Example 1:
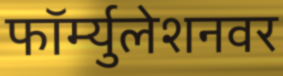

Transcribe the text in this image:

फॉर्म्युलेशनवर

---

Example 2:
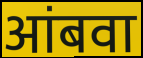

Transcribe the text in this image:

आंबवा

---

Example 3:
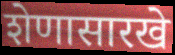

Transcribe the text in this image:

शेणासारखे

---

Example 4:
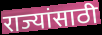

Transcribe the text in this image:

राज्यांसाठी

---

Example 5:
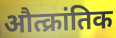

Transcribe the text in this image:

औत्क्रांतिक